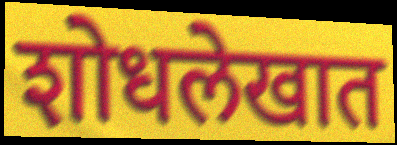
शोधलेखात